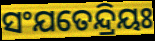
ସଂଯତେନ୍ଦ୍ରିୟଃ